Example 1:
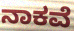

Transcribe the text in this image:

ನಾಕವೆ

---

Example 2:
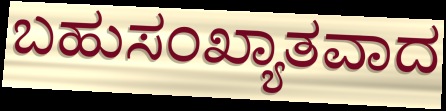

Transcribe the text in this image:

ಬಹುಸಂಖ್ಯಾತವಾದ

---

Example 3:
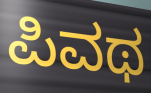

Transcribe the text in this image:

ಪಿವಥ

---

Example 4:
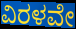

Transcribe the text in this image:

ವಿರಳವೇ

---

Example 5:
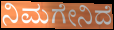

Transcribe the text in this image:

ನಿಮಗೇನಿದೆ